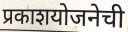
प्रकाशयोजनेची